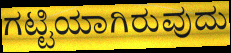
ಗಟ್ಟಿಯಾಗಿರುವುದು